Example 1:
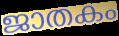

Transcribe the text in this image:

ജാതകം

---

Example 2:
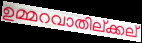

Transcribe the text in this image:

ഉമ്മറവാതില്ക്കല്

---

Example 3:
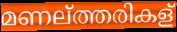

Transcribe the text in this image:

മണല്ത്തരികള്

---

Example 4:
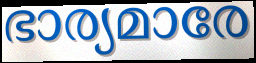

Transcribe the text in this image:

ഭാര്യമാരേ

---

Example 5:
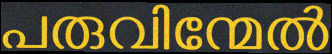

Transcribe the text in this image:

പരുവിന്മേൽ